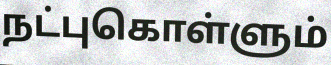
நட்புகொள்ளும்